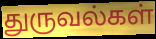
துருவல்கள்